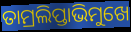
ତାମ୍ରଲିପ୍ତାଭିମୁଖେ